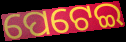
ପେଟେଇ